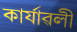
কাৰ্যাৱলী